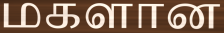
மகளான